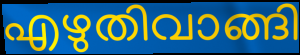
എഴുതിവാങ്ങി